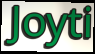
Joyti